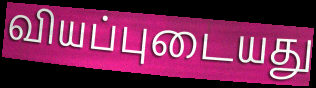
வியப்புடையது